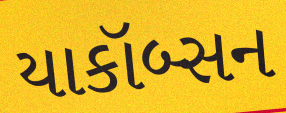
યાકૉબ્સન